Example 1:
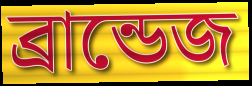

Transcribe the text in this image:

ব্রান্ডেজ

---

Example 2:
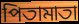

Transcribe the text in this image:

পিতামাতা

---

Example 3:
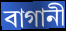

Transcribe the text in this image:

বাগানী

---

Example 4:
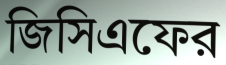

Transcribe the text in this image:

জিসিএফের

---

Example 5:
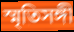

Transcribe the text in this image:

স্মৃতিসঙ্গী